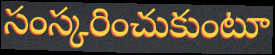
సంస్కరించుకుంటూ